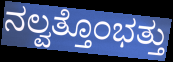
ನಲ್ವತ್ತೊಂಭತ್ತು